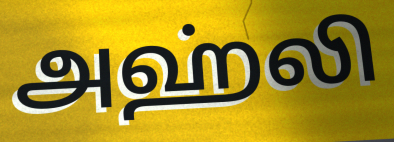
அஹ்லி